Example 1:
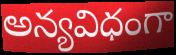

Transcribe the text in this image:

అన్యవిధంగా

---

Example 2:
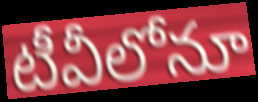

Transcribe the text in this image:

టీవీలోనూ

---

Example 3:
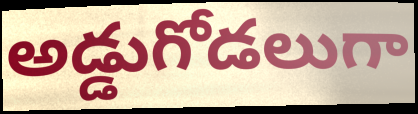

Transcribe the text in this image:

అడ్డుగోడలుగా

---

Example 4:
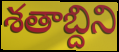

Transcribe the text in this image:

శతాబ్దిని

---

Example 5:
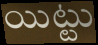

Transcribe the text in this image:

యిట్టు